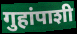
गुहांपाशी